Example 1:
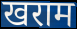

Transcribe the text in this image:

खराम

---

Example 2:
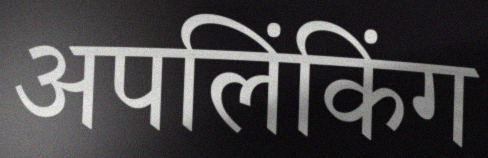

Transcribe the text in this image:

अपलिंकिंग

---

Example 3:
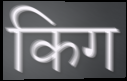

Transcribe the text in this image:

किग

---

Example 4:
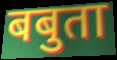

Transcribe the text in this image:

बबुता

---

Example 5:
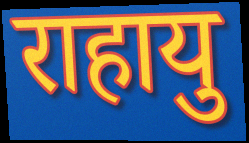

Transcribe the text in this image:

राहायु